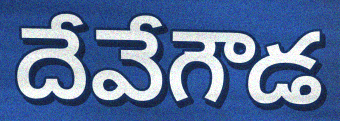
దేవేగౌడ